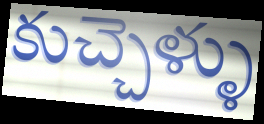
కుచ్చెళ్ళు